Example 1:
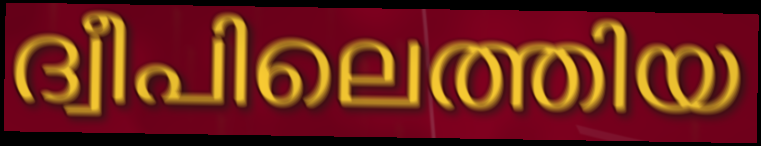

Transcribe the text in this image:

ദ്വീപിലെത്തിയ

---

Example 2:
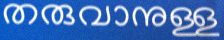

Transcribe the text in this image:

തരുവാനുള്ള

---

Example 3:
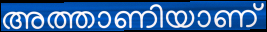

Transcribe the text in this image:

അത്താണിയാണ്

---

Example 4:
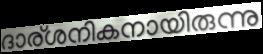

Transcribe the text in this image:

ദാര്ശനികനായിരുന്നു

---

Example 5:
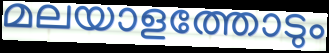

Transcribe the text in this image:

മലയാളത്തോടും